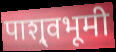
पाश्र्वभूमी